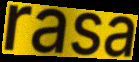
rasa